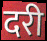
दरी